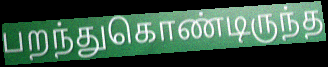
பறந்துகொண்டிருந்த